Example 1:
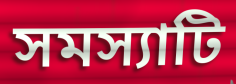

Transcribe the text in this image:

সমস্যাটি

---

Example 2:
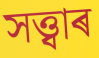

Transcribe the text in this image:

সত্ত্বাৰ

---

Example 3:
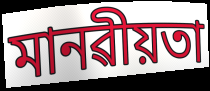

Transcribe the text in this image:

মানৱীয়তা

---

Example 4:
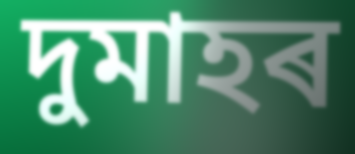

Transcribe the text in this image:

দুমাহৰ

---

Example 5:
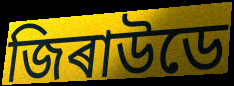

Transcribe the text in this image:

জিৰাউডে